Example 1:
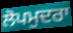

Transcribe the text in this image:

ਲੋਪਮੁਦਰਾ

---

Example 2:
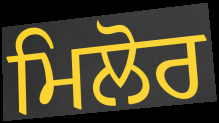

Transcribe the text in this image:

ਮਿਲੋਰ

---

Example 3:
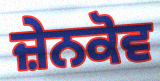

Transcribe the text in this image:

ਜ਼ੇਨਕੋਵ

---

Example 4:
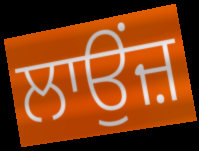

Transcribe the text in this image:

ਲਾਉਂਜ਼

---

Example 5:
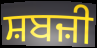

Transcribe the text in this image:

ਸ਼ਬਜ਼ੀ